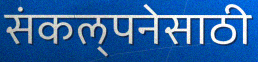
संकल्पनेसाठी